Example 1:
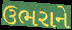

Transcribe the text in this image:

ઉભરાને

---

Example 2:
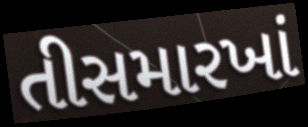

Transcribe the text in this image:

તીસમારખાં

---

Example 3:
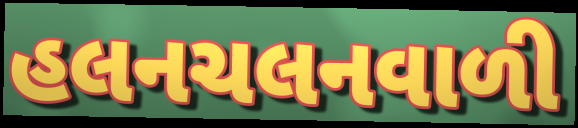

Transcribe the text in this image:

હલનચલનવાળી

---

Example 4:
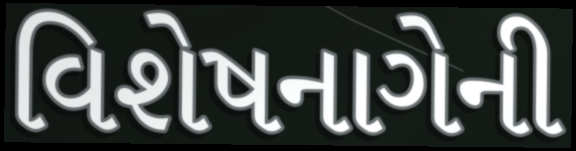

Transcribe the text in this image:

વિશેષનાગેની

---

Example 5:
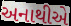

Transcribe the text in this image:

અનાથીએ